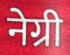
नेग्री